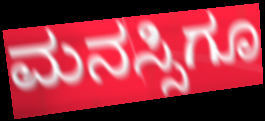
ಮನಸ್ಸಿಗೂ